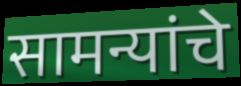
सामन्यांचे